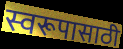
स्वरूपासाठी